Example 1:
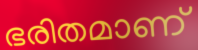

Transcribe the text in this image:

ഭരിതമാണ്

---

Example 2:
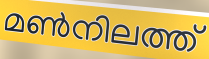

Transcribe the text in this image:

മൺനിലത്ത്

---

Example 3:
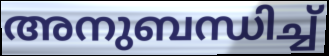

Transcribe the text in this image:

അനുബന്ധിച്ച്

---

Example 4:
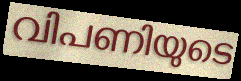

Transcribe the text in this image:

വിപണിയുടെ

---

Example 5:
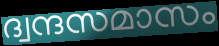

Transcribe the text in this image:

ദ്വന്ദസമാസം